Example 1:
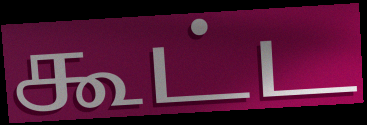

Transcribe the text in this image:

கூட்ட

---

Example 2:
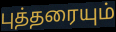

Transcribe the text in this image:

புத்தரையும்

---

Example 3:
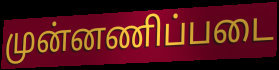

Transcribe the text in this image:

முன்னணிப்படை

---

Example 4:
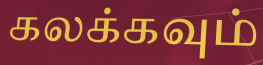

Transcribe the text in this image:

கலக்கவும்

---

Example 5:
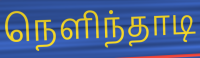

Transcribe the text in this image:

நெளிந்தாடி